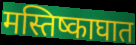
मस्तिष्काघात